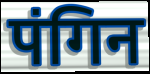
पंगिन